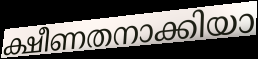
ക്ഷീണതനാക്കിയാ